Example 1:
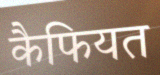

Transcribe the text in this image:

कैफियत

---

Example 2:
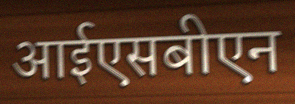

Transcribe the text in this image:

आईएसबीएन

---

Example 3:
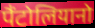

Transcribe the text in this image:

पैंटोलियानो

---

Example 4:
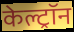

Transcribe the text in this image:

केल्ट्रॉन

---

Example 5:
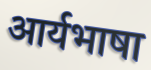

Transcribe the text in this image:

आर्यभाषा